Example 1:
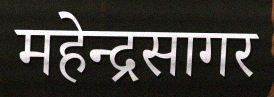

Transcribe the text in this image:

महेन्द्रसागर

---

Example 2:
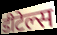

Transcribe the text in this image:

डीटेल्स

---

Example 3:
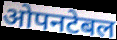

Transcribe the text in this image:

ओपनटेबल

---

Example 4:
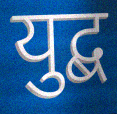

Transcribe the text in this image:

युद्ब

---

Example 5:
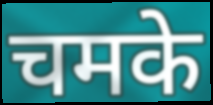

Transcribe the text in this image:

चमके